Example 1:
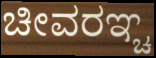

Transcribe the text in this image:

ಚೀವರಞ್ಚ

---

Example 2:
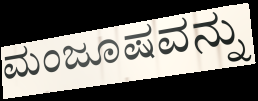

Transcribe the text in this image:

ಮಂಜೂಷವನ್ನು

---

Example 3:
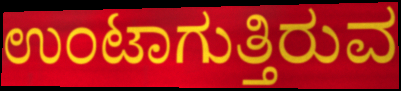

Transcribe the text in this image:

ಉಂಟಾಗುತ್ತಿರುವ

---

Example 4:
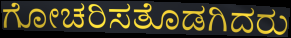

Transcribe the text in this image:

ಗೋಚರಿಸತೊಡಗಿದರು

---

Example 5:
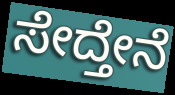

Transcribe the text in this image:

ಸೇದ್ತೇನೆ